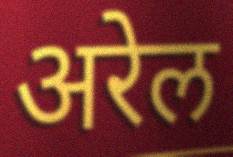
अरेल